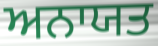
ਅਨਾਯਤ